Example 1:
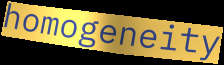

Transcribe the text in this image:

homogeneity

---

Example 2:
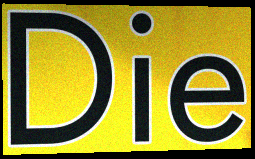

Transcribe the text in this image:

Die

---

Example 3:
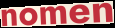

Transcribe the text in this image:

nomen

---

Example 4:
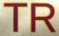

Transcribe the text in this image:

TR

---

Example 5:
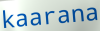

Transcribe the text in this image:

kaarana